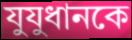
যুযুধানকে